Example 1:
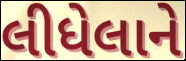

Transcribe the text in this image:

લીધેલાને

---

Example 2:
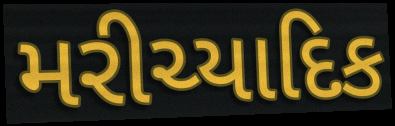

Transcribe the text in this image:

મરીચ્યાદિક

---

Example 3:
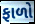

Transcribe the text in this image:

ફાળો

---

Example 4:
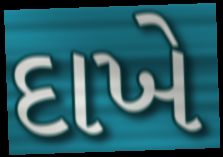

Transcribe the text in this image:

દાખે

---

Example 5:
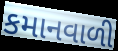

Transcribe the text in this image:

કમાનવાળી